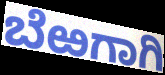
ಬೆಱಗಾಗಿ